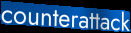
counterattack